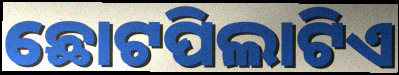
ଛୋଟପିଲାଟିଏ